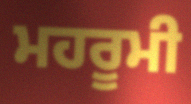
ਮਹਰੂਮੀ